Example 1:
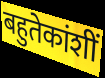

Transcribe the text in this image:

बहुतेकांशीं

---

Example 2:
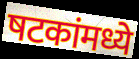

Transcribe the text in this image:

षटकांमध्ये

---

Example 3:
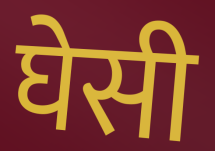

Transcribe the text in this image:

घेसी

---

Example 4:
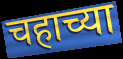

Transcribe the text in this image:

चहाच्या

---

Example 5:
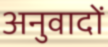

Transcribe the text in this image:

अनुवादों